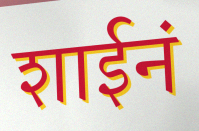
शाईनं